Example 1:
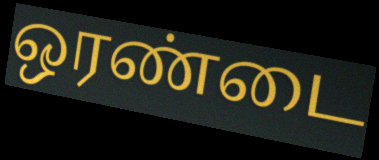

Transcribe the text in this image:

ஒரண்டை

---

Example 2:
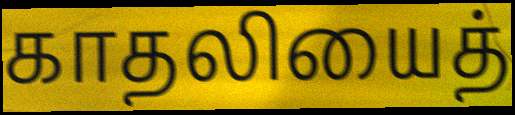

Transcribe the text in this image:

காதலியைத்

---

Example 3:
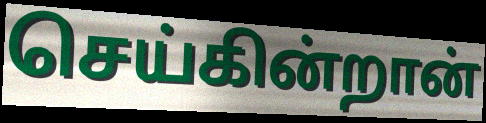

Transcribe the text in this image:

செய்கின்றான்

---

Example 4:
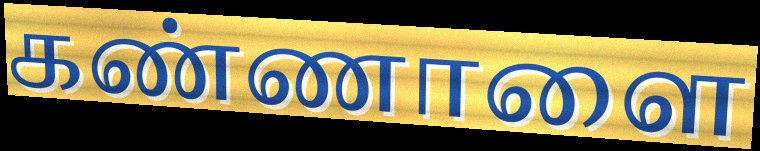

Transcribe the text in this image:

கண்ணாளை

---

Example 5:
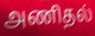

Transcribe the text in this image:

அணிதல்